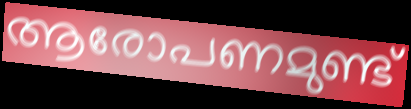
ആരോപണമുണ്ട്